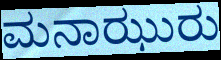
ಮನಾಝುರು